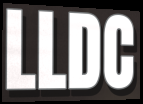
LLDC